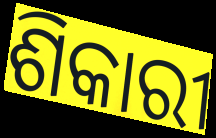
ଶିକାରୀ